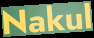
Nakul